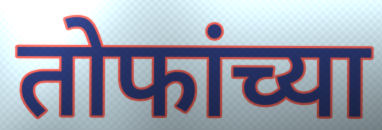
तोफांच्या